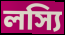
লস্যি